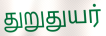
துறுதுயர்